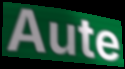
Aute